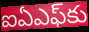
ఐఏఎఫ్‌కు